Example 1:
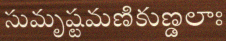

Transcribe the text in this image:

సుమృష్టమణికుణ్డలాః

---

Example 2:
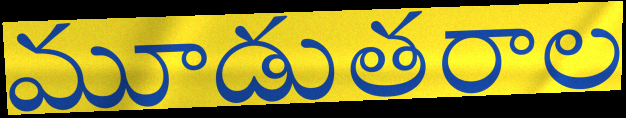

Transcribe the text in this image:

మూడుతరాల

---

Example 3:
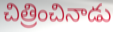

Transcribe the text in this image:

చిత్రించినాడు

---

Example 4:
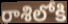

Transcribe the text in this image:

రాశిలోకి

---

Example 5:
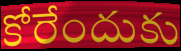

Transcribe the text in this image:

కోరేందుకు